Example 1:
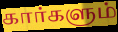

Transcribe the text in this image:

கார்களும்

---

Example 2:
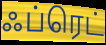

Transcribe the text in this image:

ஃப்ரெட்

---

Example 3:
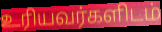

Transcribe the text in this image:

உரியவர்களிடம்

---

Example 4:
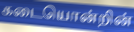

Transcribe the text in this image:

கடையொன்றின்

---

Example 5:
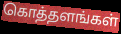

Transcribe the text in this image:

கொத்தளங்கள்